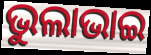
ଭୁଲାଭାଇ